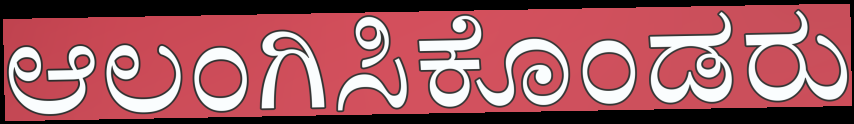
ಆಲಂಗಿಸಿಕೊಂಡರು